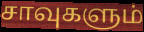
சாவுகளும்